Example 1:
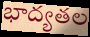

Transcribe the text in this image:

భాద్యతల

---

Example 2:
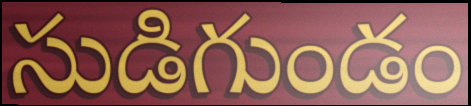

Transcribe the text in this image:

సుడిగుండం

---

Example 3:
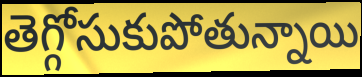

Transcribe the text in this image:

తెగ్గోసుకుపోతున్నాయి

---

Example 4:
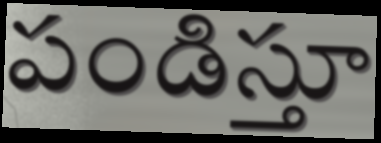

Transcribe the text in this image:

పండిస్తూ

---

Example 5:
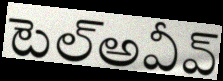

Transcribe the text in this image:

టెల్అవీవ్